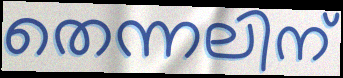
തെന്നലിന്